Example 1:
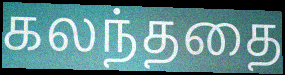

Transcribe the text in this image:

கலந்ததை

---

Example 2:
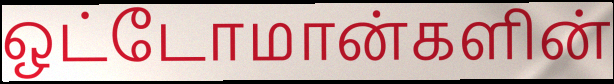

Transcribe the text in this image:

ஒட்டோமான்களின்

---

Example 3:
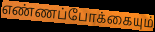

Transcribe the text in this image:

எண்ணப்போக்கையும்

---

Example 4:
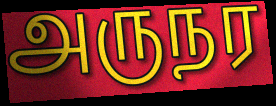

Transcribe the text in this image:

அருநர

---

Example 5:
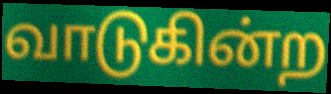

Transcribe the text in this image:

வாடுகின்ற